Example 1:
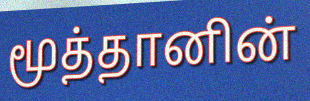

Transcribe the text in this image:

மூத்தானின்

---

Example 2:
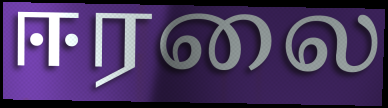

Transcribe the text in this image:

ஈரலை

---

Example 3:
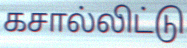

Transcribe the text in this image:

கசால்லிட்டு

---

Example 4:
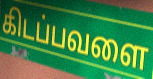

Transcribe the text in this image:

கிடப்பவளை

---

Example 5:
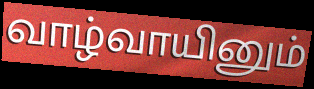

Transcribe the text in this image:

வாழ்வாயினும்